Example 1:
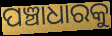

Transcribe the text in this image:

ପଞ୍ଚାଧାରକୁ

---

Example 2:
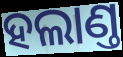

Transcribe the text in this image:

ହଲାଣ୍ତ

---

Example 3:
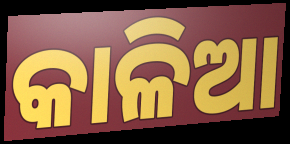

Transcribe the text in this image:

କାଳିଆ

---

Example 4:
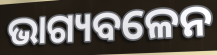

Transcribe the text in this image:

ଭାଗ୍ୟବଳେନ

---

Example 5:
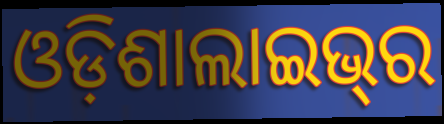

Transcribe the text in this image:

ଓଡ଼ିଶାଲାଇଭ୍‌ର